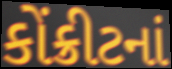
કોંક્રીટનાં